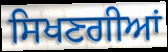
ਸਿਖਣਗੀਆਂ